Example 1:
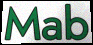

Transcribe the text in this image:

Mab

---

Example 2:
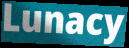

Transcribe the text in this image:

Lunacy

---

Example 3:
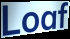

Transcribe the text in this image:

Loaf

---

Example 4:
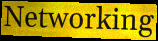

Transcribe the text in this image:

Networking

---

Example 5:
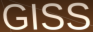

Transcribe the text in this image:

GISS